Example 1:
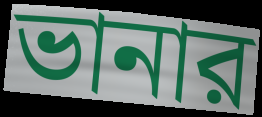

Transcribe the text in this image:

ভানার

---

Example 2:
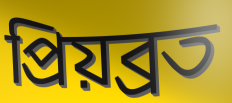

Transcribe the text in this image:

প্রিয়ব্রত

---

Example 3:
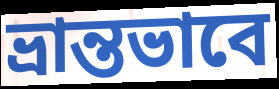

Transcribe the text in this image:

ভ্রান্তভাবে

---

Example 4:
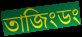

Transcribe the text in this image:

তাজিংডং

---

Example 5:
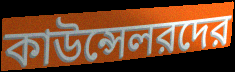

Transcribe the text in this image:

কাউন্সেলরদের